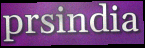
prsindia